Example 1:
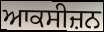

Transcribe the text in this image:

ਆਕਸੀਜ਼ਨ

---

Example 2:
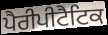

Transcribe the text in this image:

ਪੈਰੀਪੀਟੈਟਿਕ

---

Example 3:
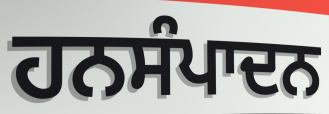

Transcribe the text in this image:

ਹਨਸੰਪਾਦਨ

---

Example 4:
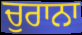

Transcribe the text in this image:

ਚੁਰਾਨਾ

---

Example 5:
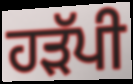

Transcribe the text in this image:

ਹੜੱਪੀ